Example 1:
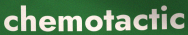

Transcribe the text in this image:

chemotactic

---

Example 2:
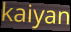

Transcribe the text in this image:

kaiyan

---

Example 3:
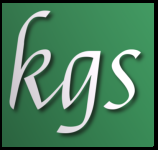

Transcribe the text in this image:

kgs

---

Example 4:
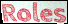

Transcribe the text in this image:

Roles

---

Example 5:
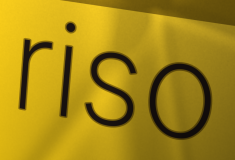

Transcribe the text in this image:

riso